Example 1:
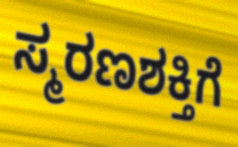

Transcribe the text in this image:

ಸ್ಮರಣಶಕ್ತಿಗೆ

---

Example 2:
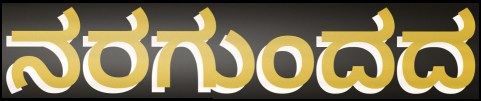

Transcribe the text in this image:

ನರಗುಂದದ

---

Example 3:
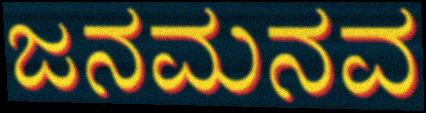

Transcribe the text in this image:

ಜನಮನವ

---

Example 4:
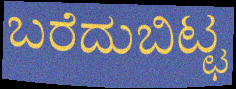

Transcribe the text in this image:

ಬರೆದುಬಿಟ್ಟ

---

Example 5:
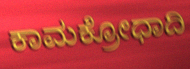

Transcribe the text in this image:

ಕಾಮಕ್ರೋಧಾದಿ